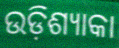
ଉଡ଼ିଶ୍ୟାକା